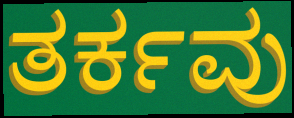
ತರ್ಕವು